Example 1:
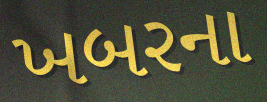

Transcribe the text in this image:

ખબરના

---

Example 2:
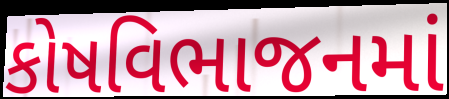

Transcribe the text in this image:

કોષવિભાજનમાં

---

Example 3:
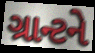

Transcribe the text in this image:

ગ્રાન્ટને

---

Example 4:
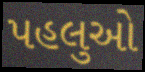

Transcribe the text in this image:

પહલુઓ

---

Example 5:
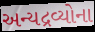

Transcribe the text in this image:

અન્યદ્રવ્યોના